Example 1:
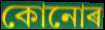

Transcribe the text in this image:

কোনোৰ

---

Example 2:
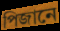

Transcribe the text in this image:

পিজানে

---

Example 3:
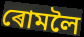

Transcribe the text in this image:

ৰোমলৈ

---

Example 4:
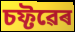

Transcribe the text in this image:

চফ্টৱেৰ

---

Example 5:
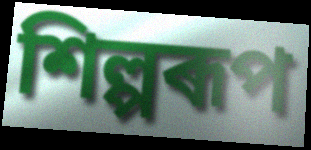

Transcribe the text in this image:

শিল্পৰূপ